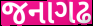
જનાગઢ